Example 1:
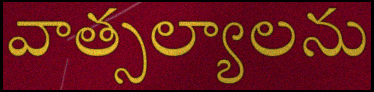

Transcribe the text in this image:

వాత్సల్యాలను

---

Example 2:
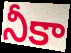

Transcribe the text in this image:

నీకా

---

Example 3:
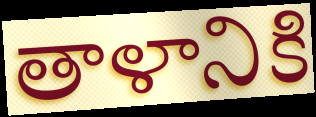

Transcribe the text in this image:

తాళానికి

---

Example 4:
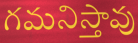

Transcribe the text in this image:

గమనిస్తావు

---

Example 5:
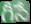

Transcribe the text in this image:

గీసే